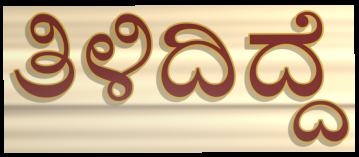
ತಿಳಿದಿದ್ದೆ